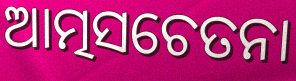
ଆତ୍ମସଚେତନା